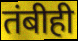
तंबीही